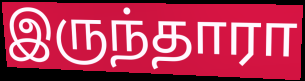
இருந்தாரா